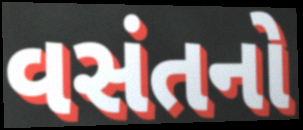
વસંતનો